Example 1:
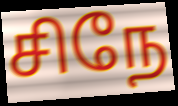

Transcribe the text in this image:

சிநே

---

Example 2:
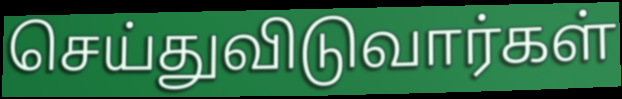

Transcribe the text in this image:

செய்துவிடுவார்கள்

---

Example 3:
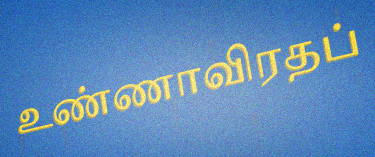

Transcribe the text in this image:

உண்ணாவிரதப்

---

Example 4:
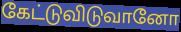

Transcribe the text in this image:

கேட்டுவிடுவானோ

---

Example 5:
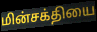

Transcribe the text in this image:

மின்சக்தியை